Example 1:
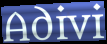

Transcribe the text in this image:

Adivi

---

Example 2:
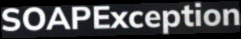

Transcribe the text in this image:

SOAPException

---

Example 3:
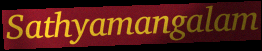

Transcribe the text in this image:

Sathyamangalam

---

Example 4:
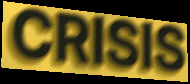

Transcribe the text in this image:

CRISIS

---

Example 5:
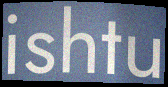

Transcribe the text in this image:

ishtu